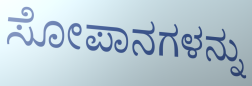
ಸೋಪಾನಗಳನ್ನು